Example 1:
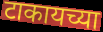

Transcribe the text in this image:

टाकायच्या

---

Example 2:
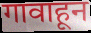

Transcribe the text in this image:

गावाहून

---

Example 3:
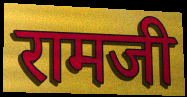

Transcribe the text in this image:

रामजी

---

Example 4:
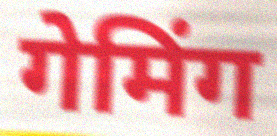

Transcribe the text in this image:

गेमिंग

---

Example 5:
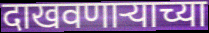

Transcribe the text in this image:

दाखवणाऱ्याच्या